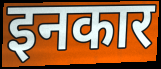
इनकार